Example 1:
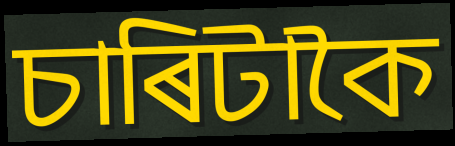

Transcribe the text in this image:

চাৰিটাকৈ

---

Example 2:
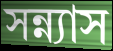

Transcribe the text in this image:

সন্ন্যাস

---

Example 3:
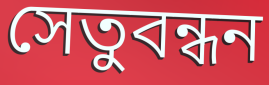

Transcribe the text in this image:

সেতুবন্ধন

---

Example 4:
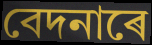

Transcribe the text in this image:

বেদনাৰে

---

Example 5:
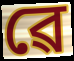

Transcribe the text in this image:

ৱে